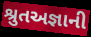
શ્રુતઅજ્ઞાની